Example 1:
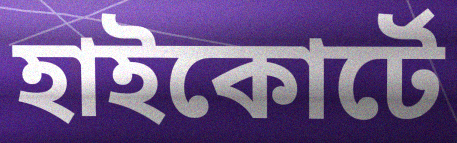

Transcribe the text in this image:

হাইকোর্টে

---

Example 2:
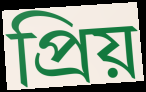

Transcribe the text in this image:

প্রিয়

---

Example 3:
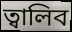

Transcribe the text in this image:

ত্বালিব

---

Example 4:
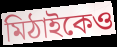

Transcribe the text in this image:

মিঠাইকেও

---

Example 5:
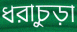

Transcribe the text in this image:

ধরাচুড়া